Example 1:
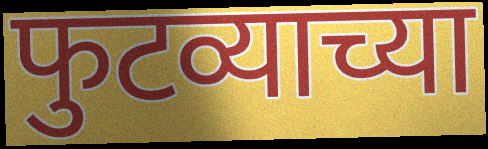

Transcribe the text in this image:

फुटव्याच्या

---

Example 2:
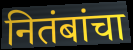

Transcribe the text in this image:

नितंबांचा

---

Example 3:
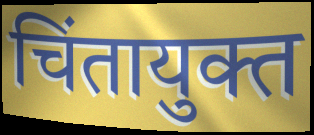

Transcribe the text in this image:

चिंतायुक्त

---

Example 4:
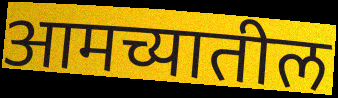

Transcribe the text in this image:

आमच्यातील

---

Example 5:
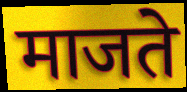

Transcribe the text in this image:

माजते